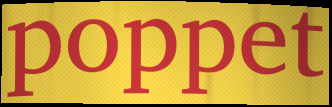
poppet